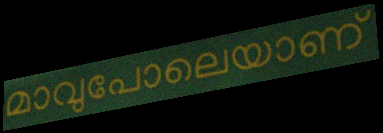
മാവുപോലെയാണ്